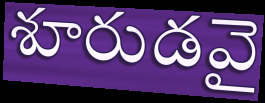
శూరుడవై